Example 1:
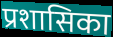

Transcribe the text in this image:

प्रशासिका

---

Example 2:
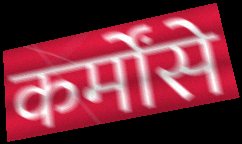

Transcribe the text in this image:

कर्मोंसे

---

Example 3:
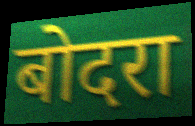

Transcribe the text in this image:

बोदरा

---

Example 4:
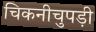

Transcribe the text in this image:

चिकनीचुपड़ी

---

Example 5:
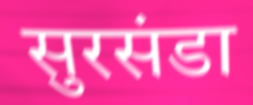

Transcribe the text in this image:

सुरसंडा